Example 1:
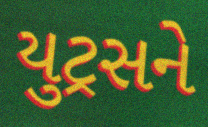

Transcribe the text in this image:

યુટ્રસને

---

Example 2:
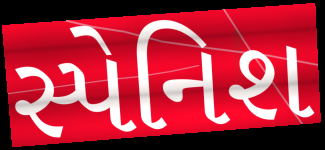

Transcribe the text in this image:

સ્પેનિશ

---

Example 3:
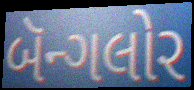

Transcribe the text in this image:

બૅન્ગલોર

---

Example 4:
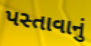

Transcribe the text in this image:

પસ્તાવાનું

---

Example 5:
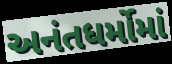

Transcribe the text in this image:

અનંતધર્મોમાં